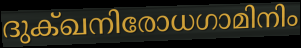
ദുക്ഖനിരോധഗാമിനിം